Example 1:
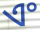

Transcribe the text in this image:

ଏଂ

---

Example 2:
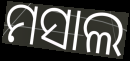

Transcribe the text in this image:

ମସାଲ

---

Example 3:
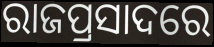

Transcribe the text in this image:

ରାଜପ୍ରସାଦରେ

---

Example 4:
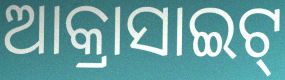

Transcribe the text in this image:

ଆକ୍ରାସାଇଟ୍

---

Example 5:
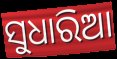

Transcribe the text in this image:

ସୁଧାରିଆ